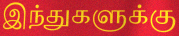
இந்துகளுக்கு